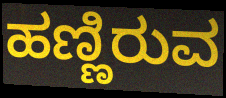
ಹಣ್ಣಿರುವ